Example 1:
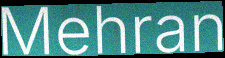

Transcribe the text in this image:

Mehran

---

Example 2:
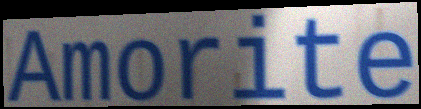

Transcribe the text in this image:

Amorite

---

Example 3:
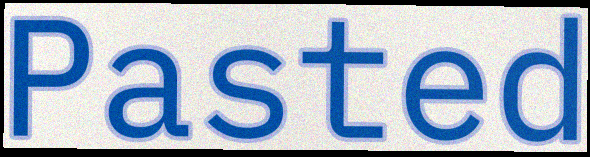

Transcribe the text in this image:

Pasted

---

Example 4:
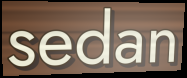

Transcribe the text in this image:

sedan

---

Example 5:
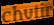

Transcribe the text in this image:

chutir